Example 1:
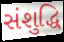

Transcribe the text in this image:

સંશુદ્ધિ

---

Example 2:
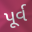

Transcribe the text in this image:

પૂર્વ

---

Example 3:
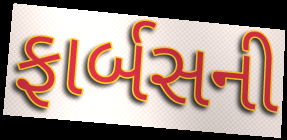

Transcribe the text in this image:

ફાર્બસની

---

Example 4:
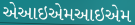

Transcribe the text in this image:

એઆઇએમઆઇએમ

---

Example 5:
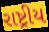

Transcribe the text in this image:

રાષ્ટ્રીય